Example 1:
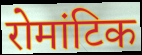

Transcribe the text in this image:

रोमांटिक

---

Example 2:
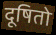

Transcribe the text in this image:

दूषितो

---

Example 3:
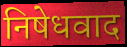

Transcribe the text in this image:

निषेधवाद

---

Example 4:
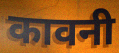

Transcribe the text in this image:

कावनी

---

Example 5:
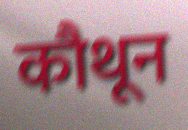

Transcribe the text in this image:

कौथून